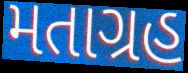
મતાગ્રહ